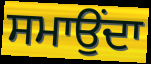
ਸਮਾਉਂਦਾ